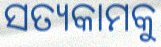
ସତ୍ୟକାମକୁ